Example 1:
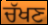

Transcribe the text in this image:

ਚੱਖਣ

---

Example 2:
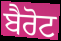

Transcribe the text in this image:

ਬੈਰੋਟ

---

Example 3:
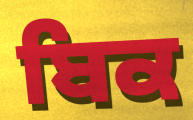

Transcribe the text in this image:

ਬਿਕ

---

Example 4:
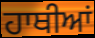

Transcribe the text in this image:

ਹਾਥੀਆਂ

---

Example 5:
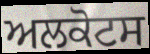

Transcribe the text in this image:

ਅਲਕੋਟਸ